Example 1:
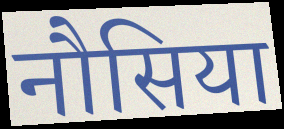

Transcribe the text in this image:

नौसिया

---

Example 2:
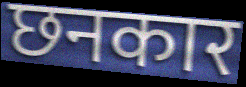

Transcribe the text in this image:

छनकार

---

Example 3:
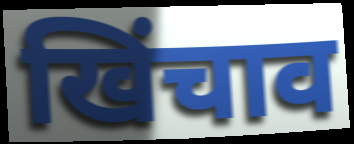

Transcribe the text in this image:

खिंचाव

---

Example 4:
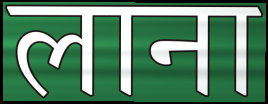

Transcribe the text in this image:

लाना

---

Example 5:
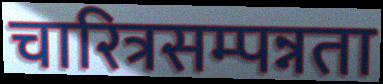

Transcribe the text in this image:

चारित्रसम्पन्नता